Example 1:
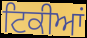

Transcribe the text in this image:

ਟਿਕੀਆਂ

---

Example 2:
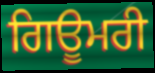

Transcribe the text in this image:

ਗਿਊਮਰੀ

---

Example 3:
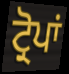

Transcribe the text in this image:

ਟ੍ਰੋਪਾਂ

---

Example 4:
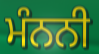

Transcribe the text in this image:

ਮੰਨਨੀ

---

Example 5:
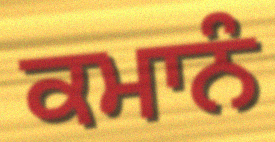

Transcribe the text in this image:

ਕਮਾਨੰ